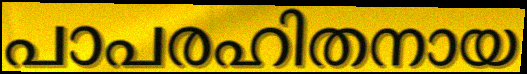
പാപരഹിതനായ